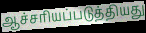
ஆச்சரியப்படுத்தியது